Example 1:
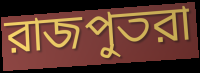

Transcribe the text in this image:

রাজপুতরা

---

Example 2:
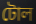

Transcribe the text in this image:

টোল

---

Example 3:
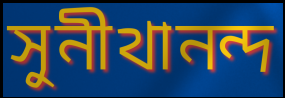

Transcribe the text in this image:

সুনীথানন্দ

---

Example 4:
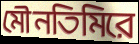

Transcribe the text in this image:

মৌনতিমিরে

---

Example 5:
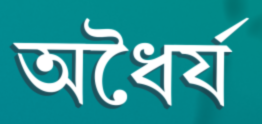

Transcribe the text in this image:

অধৈর্য